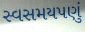
સ્વસમયપણું